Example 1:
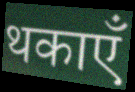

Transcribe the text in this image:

थकाएँ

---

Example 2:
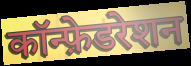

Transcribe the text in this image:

कॉन्फ़ेडरेशन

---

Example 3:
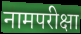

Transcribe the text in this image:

नामपरीक्षा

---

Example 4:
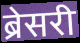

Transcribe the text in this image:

ब्रेसरी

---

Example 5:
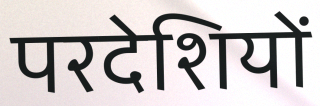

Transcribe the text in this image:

परदेशियों